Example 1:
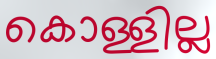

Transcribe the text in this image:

കൊള്ളില്ല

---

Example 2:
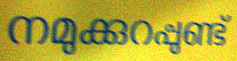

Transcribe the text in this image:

നമുക്കുറപ്പുണ്ട്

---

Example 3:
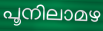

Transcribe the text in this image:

പൂനിലാമഴ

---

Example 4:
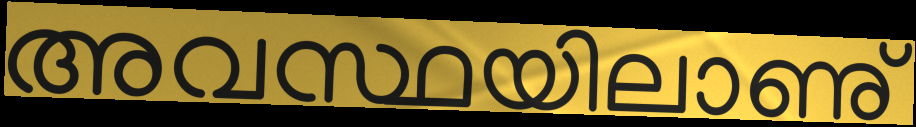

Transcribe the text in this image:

അവസ്ഥയിലാണു്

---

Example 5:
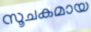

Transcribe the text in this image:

സൂചകമായ